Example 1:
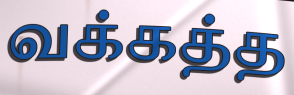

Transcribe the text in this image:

வக்கத்த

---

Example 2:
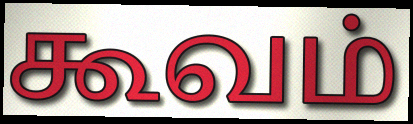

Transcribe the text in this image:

கூவம்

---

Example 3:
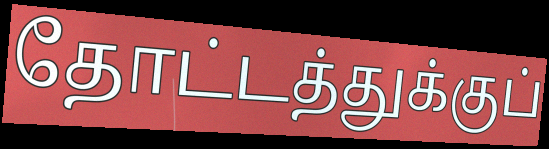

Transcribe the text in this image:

தோட்டத்துக்குப்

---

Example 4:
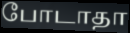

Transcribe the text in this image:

போடாதா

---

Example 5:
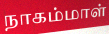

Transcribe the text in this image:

நாகம்மாள்